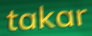
takar